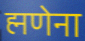
ह्मणेना